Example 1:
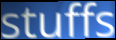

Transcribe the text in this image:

stuffs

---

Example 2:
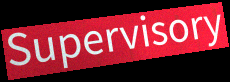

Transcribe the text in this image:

Supervisory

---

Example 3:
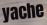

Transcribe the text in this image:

yache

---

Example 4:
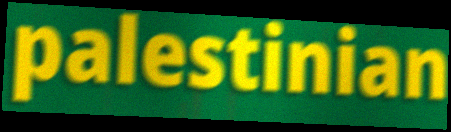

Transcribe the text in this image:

palestinian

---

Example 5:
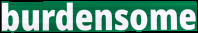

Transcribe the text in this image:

burdensome